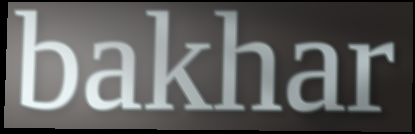
bakhar